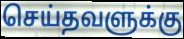
செய்தவளுக்கு